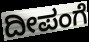
ದೀಪಂಗೆ